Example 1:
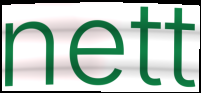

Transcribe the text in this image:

nett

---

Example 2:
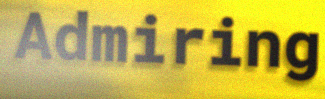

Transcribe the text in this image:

Admiring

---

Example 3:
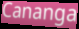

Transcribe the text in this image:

Cananga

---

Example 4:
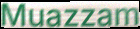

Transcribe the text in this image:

Muazzam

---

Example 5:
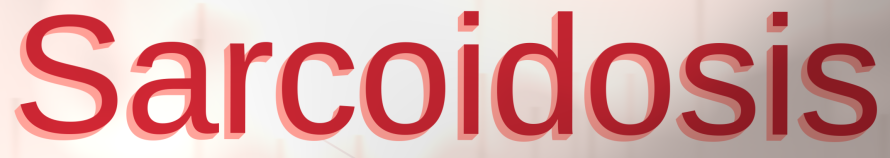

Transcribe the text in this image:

Sarcoidosis